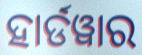
ହାର୍ଡୱାର